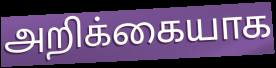
அறிக்கையாக